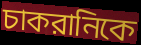
চাকরানিকে